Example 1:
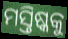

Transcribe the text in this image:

ମସ୍ତିଷ୍କକୁ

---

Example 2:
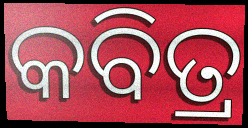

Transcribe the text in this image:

କବିତ୍ର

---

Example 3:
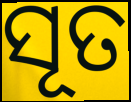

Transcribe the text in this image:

ସୂତ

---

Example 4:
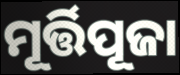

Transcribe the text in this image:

ମୂର୍ତ୍ତିପୂଜା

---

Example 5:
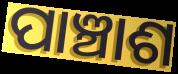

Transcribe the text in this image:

ପାଞ୍ଚାଶ